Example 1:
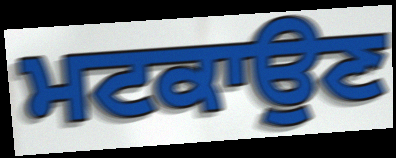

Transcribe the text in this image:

ਮਟਕਾਉਣ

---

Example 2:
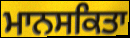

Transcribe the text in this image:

ਮਾਨਸਕਿਤਾ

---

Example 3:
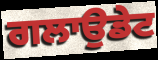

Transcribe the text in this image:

ਗਲਾਉਡੇਟ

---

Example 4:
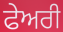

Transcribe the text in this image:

ਫੇਅਰੀ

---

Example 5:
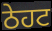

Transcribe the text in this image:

ਠੇਹਟ